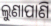
ଲୁଣାପାଣି